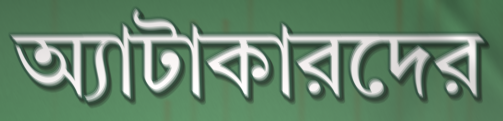
অ্যাটাকারদের